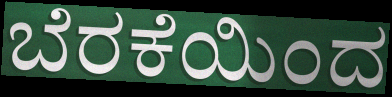
ಬೆರಕೆಯಿಂದ